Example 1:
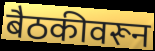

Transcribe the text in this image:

बैठकीवरून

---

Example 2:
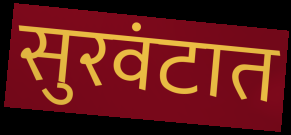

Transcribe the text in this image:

सुरवंटात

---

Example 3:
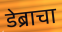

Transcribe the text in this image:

डेब्राचा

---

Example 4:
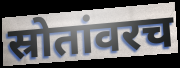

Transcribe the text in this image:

स्रोतांवरच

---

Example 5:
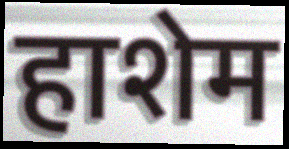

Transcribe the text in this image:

हाशेम